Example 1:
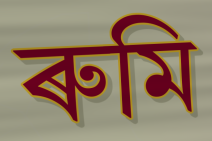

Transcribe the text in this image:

ৰুমি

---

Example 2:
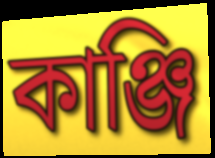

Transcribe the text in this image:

কাঞ্জি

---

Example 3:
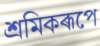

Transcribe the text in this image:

শ্ৰমিকৰূপে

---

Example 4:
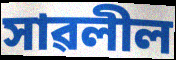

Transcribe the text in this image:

সাৱলীল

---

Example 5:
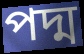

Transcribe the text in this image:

পদ্ম